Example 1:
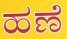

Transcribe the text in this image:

ಹಣೆ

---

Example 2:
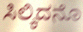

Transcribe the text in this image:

ಸಿಲ್ಕಿದನೊ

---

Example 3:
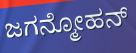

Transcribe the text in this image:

ಜಗನ್ಮೋಹನ್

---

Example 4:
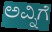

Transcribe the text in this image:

ಅವ್ನಿಗೆ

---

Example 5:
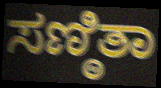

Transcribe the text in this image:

ಸಣ್ಠಿತಾ